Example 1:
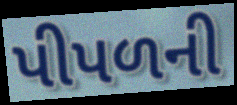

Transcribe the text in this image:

પીપળની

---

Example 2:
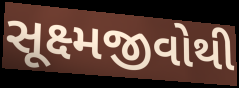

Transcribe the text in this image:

સૂક્ષ્મજીવોથી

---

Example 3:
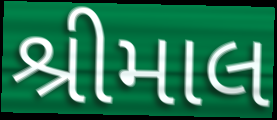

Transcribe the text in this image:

શ્રીમાલ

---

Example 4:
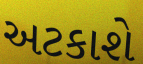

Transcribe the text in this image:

અટકાશે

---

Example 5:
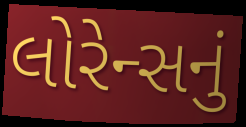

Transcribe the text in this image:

લોરેન્સનું